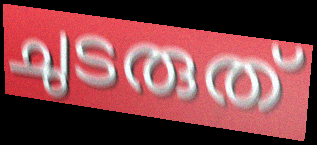
ചുടരുത്